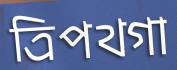
ত্রিপথগা